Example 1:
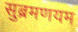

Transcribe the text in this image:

सुब्रमणयम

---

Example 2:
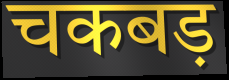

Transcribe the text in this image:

चकबड़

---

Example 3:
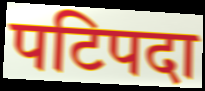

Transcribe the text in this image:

पटिपदा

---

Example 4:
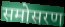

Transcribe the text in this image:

समोसरण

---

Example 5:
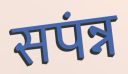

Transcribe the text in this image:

सपंन्न